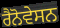
ਰੈਨੋਵੇਸਨ